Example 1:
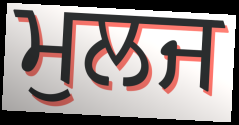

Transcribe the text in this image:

ਮੁਲਜ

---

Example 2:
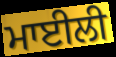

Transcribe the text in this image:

ਮਾਈਲੀ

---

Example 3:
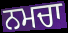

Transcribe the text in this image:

ਨਮਚਾ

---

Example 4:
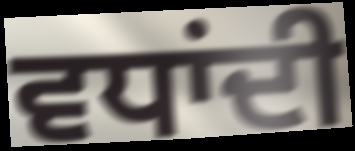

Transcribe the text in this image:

ਵਧਾਂਦੀ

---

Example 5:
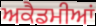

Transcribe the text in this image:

ਅਕੈਡਮੀਆਂ